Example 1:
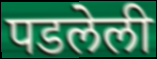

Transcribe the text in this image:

पडलेली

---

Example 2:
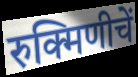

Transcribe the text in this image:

रुक्मिणीचें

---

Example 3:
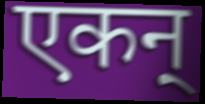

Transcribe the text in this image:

एकन्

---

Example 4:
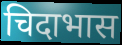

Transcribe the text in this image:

चिदाभास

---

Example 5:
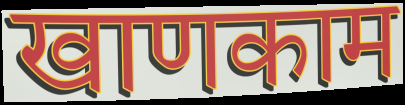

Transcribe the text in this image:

खाणकाम